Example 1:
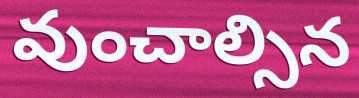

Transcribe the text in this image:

వుంచాల్సిన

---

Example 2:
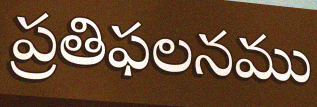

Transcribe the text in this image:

ప్రతిఫలనము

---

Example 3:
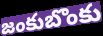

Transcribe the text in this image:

జంకుబొంకు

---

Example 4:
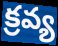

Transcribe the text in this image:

క్రవ్య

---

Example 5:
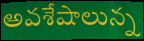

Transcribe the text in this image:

అవశేషాలున్న